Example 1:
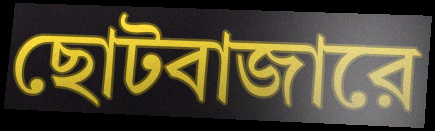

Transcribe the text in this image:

ছোটবাজারে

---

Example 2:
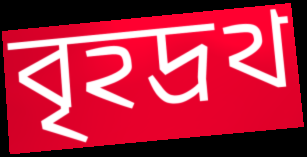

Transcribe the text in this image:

বৃহদ্রথ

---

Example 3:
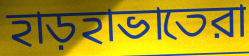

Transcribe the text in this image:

হাড়হাভাতেরা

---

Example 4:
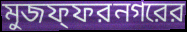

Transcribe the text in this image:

মুজফ্ফরনগরের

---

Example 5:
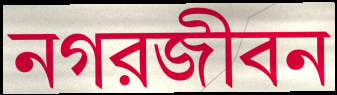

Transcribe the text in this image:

নগরজীবন